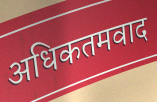
अधिकतमवाद